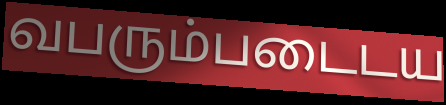
வபரும்படைடய